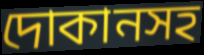
দোকানসহ